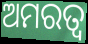
ଅମରତ୍ବ